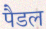
पैडल